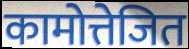
कामोत्तेजित